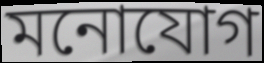
মনোযোগ